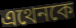
এথেনকে